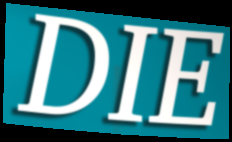
DIE